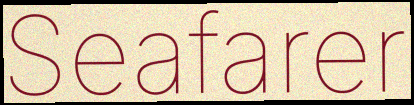
Seafarer